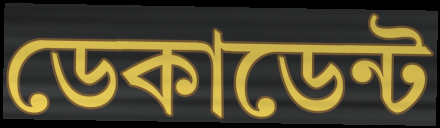
ডেকাডেন্ট